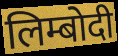
लिम्बोदी